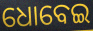
ଧୋବେଇ